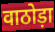
वाठोड़ा